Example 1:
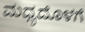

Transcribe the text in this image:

ಮಧ್ಯದೊಳಗೆ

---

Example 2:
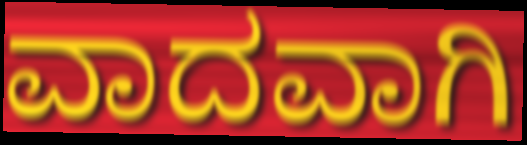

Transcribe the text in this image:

ವಾದವಾಗಿ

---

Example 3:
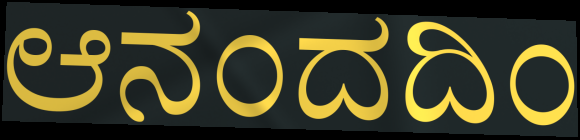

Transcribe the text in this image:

ಆನಂದದಿಂ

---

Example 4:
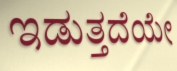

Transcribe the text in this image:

ಇಡುತ್ತದೆಯೇ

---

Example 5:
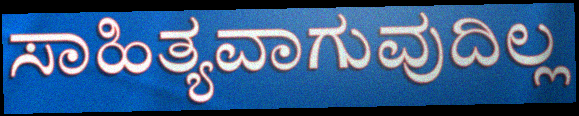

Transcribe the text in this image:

ಸಾಹಿತ್ಯವಾಗುವುದಿಲ್ಲ